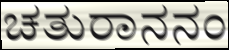
ಚತುರಾನನಂ